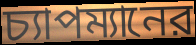
চ্যাপম্যানের